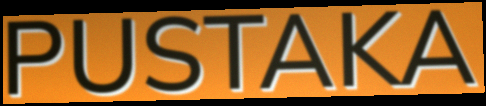
PUSTAKA